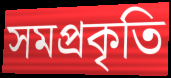
সমপ্রকৃতি